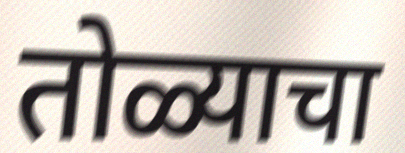
तोळ्याचा